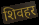
शिवहर